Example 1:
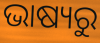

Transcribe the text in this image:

ଭାଷ୍ୟରୁ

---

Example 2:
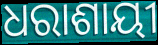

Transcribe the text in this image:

ଧରାଶାୟୀ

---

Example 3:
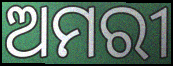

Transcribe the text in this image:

ଅମରୀ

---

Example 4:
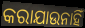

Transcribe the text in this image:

କରାଯାଉନାହିଁ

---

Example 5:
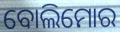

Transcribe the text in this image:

ବୋଲିମୋର